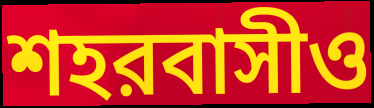
শহরবাসীও